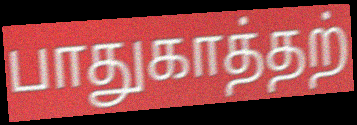
பாதுகாத்தற்